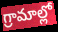
గ్రామాల్లో